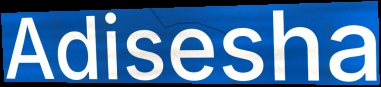
Adisesha